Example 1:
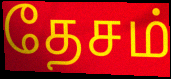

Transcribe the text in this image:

தேசம்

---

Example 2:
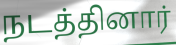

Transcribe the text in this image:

நடத்தினார்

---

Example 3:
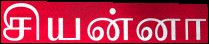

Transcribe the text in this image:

சியன்னா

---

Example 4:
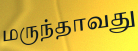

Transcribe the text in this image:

மருந்தாவது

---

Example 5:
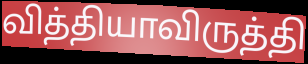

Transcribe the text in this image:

வித்தியாவிருத்தி